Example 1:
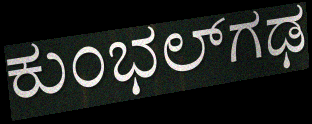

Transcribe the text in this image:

ಕುಂಭಲ್‌ಗಢ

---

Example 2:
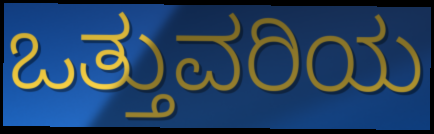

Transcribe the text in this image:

ಒತ್ತುವರಿಯ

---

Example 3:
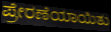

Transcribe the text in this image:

ಪ್ರೇರಣೆಯಾಯಿತು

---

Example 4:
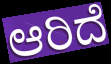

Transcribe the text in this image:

ಆರಿದೆ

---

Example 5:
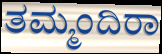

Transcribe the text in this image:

ತಮ್ಮಂದಿರಾ